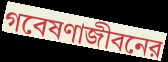
গবেষণাজীবনের